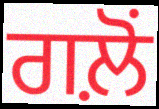
ਗਲ਼ੋਂ